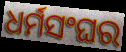
ଧର୍ମସଂଘର